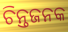
ଚିନ୍ତଜନକ